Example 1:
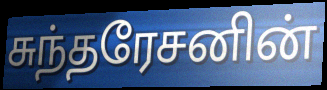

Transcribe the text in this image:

சுந்தரேசனின்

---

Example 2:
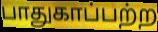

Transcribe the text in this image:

பாதுகாப்பற்ற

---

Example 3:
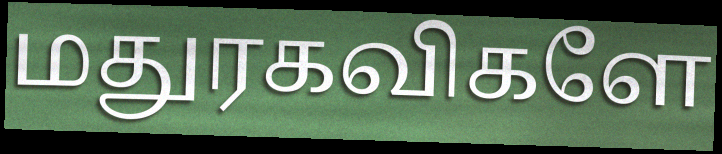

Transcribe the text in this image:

மதுரகவிகளே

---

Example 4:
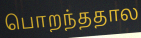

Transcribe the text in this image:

பொறந்ததால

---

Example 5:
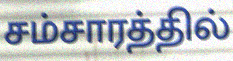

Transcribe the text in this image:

சம்சாரத்தில்